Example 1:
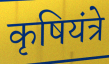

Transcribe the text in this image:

कृषियंत्रे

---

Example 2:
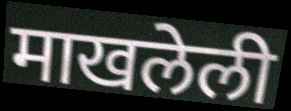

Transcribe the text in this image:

माखलेली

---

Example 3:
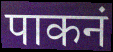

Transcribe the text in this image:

पाकनं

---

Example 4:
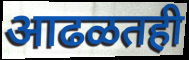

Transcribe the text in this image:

आढळतही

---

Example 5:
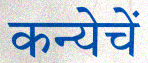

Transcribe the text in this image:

कन्येचें